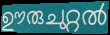
ഊരുചുറ്റൽ